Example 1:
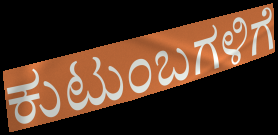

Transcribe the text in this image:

ಕುಟುಂಬಗಳಿಗೆ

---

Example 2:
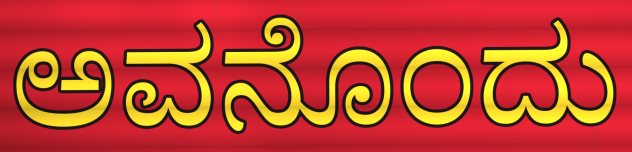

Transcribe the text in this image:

ಅವನೊಂದು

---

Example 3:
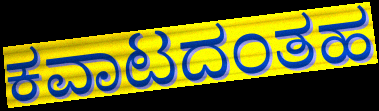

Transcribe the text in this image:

ಕವಾಟದಂತಹ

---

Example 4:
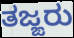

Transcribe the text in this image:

ತಜ್ಙರು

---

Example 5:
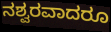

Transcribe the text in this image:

ನಶ್ವರವಾದರೂ